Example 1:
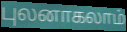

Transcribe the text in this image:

புலனாகலாம்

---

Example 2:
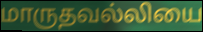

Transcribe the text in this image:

மாருதவல்லியை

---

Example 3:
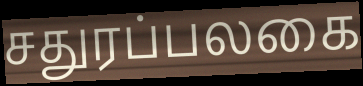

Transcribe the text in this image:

சதுரப்பலகை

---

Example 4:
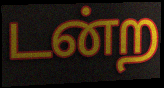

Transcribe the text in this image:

டன்ற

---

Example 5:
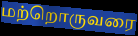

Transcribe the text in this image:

மற்றொருவரை